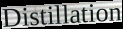
Distillation